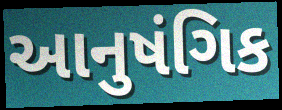
આનુષંગિક